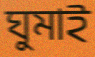
ঘুমাই